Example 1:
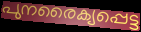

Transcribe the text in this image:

പുനരൈക്യപ്പെട്ട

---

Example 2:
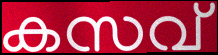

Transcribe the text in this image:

കസവ്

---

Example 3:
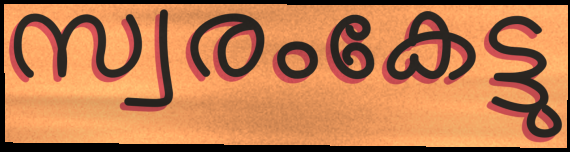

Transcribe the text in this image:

സ്വരംകേട്ടു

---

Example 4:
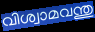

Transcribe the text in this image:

വിശ്വാമവന്തു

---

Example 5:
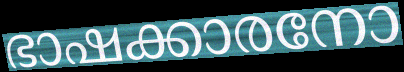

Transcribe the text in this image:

ഭാഷക്കാരനോ